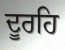
ਦੂਰਹਿ